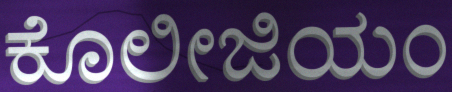
ಕೊಲೀಜಿಯಂ